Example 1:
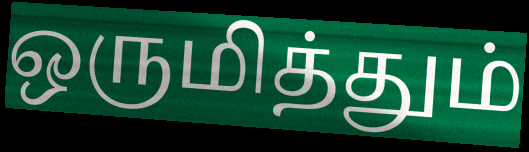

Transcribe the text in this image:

ஒருமித்தும்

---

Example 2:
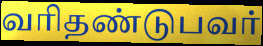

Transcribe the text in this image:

வரிதண்டுபவர்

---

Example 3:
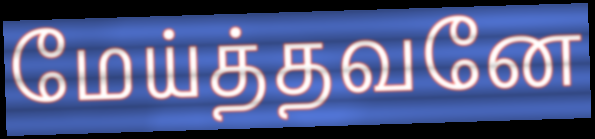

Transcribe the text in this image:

மேய்த்தவனே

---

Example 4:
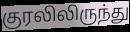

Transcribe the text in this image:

குரலிலிருந்து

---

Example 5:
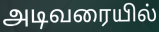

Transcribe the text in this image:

அடிவரையில்